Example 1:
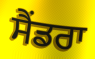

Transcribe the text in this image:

ਸੈਂਡਰਾ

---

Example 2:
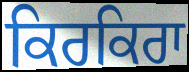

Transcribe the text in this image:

ਕਿਰਕਿਰਾ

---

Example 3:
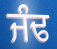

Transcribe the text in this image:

ਜੰਢ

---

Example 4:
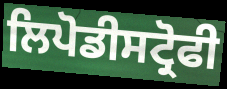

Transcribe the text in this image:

ਲਿਪੋਡੀਸਟ੍ਰੋਫੀ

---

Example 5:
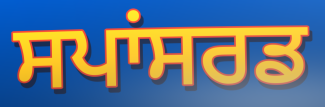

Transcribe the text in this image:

ਸਪਾਂਸਰਡ